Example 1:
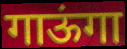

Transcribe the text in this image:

गाऊंगा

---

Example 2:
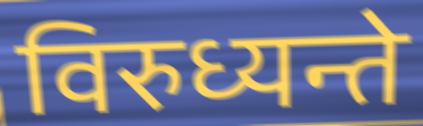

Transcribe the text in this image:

विरुध्यन्ते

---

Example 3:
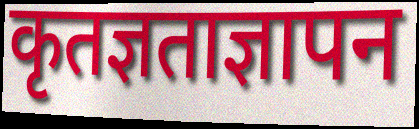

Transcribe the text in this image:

कृतज्ञताज्ञापन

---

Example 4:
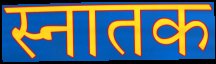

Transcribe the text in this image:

स्नातक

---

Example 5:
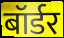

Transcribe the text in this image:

बॉर्डर